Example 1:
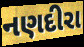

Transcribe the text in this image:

નણદીરા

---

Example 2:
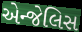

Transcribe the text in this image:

એન્જેલિસ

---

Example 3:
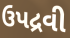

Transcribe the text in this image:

ઉપદ્રવી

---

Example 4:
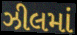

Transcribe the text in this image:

ઝીલમાં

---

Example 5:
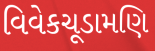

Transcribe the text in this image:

વિવેકચૂડામણિ